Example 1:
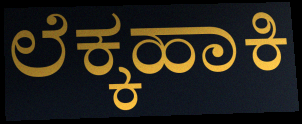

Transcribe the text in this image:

ಲೆಕ್ಕಹಾಕಿ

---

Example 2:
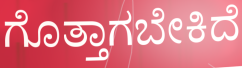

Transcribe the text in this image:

ಗೊತ್ತಾಗಬೇಕಿದೆ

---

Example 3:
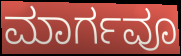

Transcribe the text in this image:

ಮಾರ್ಗವೂ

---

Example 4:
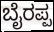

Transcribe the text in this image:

ಬೈರಪ್ಪ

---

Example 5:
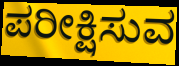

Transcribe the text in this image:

ಪರೀಕ್ಷಿಸುವ